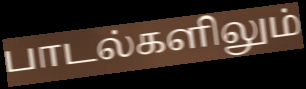
பாடல்களிலும்